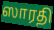
ஸாரதி